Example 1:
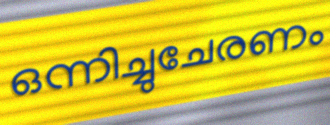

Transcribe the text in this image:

ഒന്നിച്ചുചേരണം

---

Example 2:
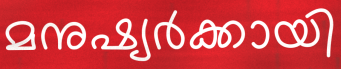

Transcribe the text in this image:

മനുഷ്യർക്കായി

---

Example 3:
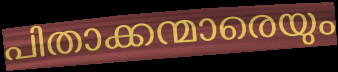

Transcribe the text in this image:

പിതാക്കന്മാരെയും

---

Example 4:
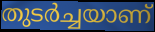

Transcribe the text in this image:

തുടർച്ചയാണ്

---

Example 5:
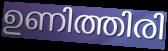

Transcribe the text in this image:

ഉണിത്തിരി